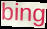
bing